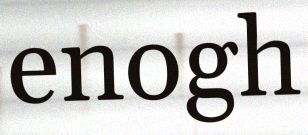
enogh